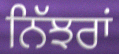
ਨਿੱਝਰਾਂ